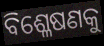
ବିଶ୍ଳେଷଣକୁ